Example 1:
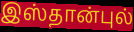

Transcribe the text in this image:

இஸ்தான்புல்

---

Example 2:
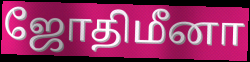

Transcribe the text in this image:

ஜோதிமீனா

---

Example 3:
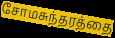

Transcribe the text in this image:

சோமசுந்தரத்தை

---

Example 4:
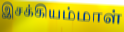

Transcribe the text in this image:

இசக்கியம்மாள்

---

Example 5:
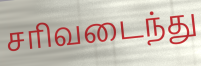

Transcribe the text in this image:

சரிவடைந்து